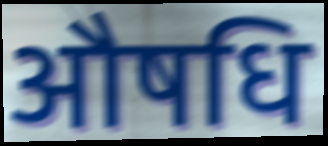
औषधि